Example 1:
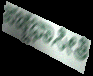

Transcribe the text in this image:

ಪಚ್ಚಭಾಸೀತಿ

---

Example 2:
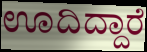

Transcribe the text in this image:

ಊದಿದ್ದಾರೆ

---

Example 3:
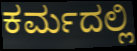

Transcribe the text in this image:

ಕರ್ಮದಲ್ಲಿ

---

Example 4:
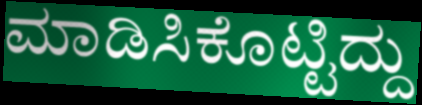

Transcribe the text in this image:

ಮಾಡಿಸಿಕೊಟ್ಟಿದ್ದು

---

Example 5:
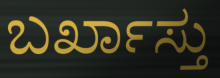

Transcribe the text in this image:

ಬರ್ಖಾಸ್ತು